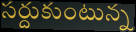
సర్దుకుంటున్న